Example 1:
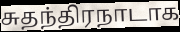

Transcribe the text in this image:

சுதந்திரநாடாக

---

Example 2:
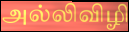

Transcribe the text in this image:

அல்லிவிழி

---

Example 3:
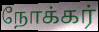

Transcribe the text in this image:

நோக்கர்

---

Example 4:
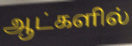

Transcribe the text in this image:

ஆட்களில்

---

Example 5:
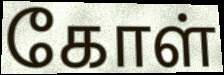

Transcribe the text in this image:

கோள்